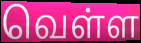
வெள்ள